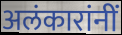
अलंकारांनीं